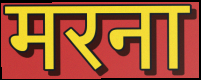
मरना